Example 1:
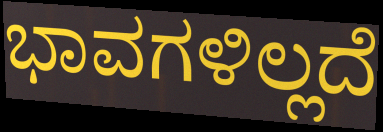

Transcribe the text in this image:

ಭಾವಗಳಿಲ್ಲದೆ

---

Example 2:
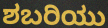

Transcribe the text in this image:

ಶಬರಿಯು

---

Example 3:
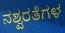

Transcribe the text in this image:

ನಶ್ವರತೆಗಳ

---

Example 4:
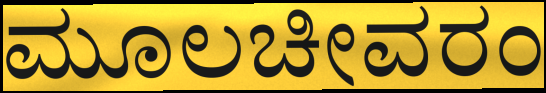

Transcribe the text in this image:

ಮೂಲಚೀವರಂ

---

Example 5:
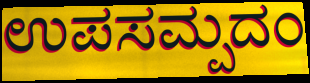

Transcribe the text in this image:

ಉಪಸಮ್ಪದಂ